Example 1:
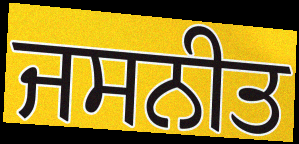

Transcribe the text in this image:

ਜਸਨੀਤ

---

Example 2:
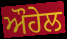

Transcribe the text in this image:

ਔਹੇਲ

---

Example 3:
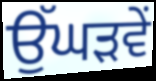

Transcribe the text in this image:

ਉੱਘੜਵੇਂ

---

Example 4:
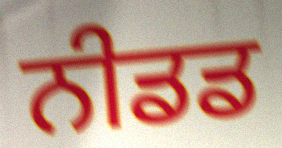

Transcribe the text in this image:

ਨੀਡਡ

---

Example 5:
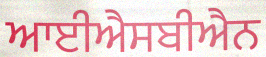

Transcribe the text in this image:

ਆਈਐਸਬੀਐਨ